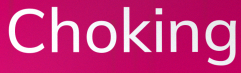
Choking